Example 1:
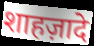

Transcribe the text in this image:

शाहज़ादे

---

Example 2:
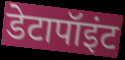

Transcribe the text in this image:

डेटापॉइंट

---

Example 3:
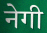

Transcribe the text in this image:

नेगी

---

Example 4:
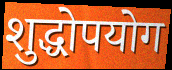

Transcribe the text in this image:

शुद्धोपयोग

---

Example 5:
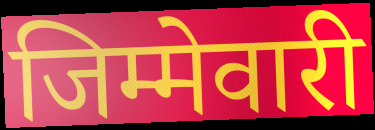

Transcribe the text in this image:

जिम्मेवारी